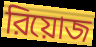
রিয়োজ